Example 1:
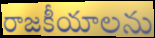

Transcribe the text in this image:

రాజకీయాలను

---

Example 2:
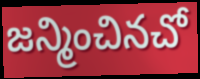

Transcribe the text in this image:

జన్మించినచో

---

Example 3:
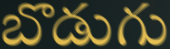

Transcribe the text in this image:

బొడుగు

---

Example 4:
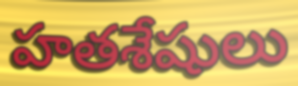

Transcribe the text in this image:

హతశేషులు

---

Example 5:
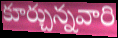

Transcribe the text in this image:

కూర్చున్నవారి